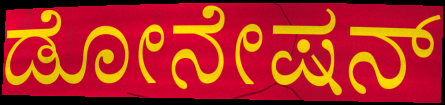
ಡೋನೇಷನ್